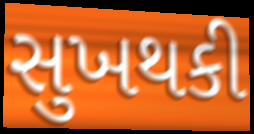
સુખથકી